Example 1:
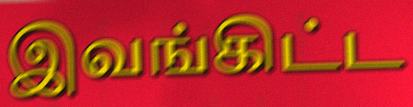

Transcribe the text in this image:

இவங்கிட்ட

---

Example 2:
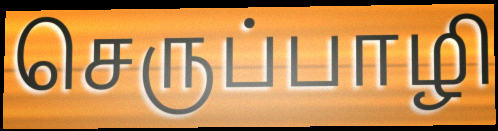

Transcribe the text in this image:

செருப்பாழி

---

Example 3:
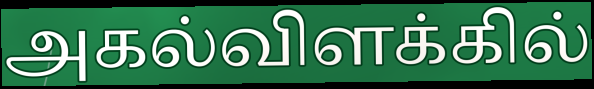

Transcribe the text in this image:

அகல்விளக்கில்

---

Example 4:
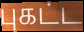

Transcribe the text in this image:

புகட்ட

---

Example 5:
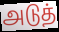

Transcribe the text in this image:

அடுத்